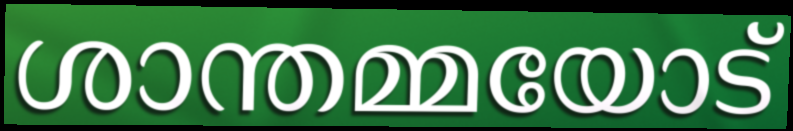
ശാന്തമ്മയോട്